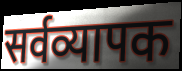
सर्वव्यापक